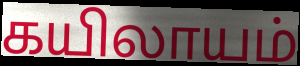
கயிலாயம்